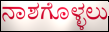
ನಾಶಗೊಳ್ಳಲು